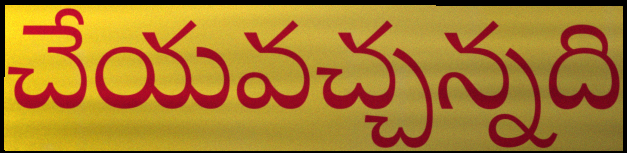
చేయవచ్చన్నది